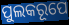
ପୁଲକରୂପେ